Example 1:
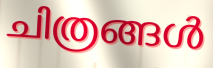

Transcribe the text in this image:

ചിത്രങ്ങൾ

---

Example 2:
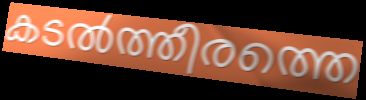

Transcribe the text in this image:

കടൽത്തീരത്തെ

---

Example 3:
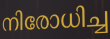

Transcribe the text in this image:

നിരോധിച്ച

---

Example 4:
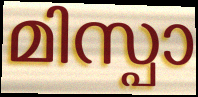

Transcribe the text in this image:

മിസ്പാ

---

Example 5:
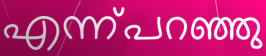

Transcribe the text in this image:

എന്ന്പറഞ്ഞു